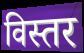
विस्तर